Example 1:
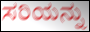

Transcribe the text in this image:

ಸರಿಯನ್ನು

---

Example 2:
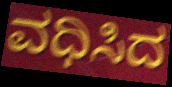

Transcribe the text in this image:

ವಧಿಸಿದ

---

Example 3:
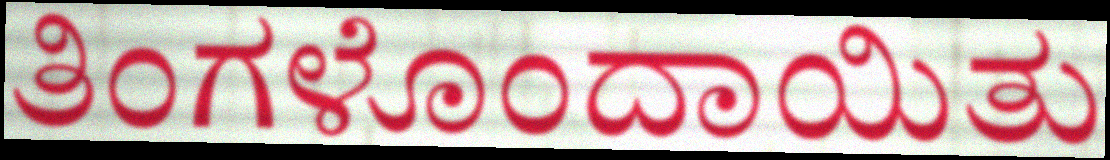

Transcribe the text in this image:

ತಿಂಗಳೊಂದಾಯಿತು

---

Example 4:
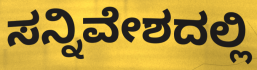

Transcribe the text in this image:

ಸನ್ನಿವೇಶದಲ್ಲಿ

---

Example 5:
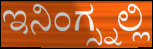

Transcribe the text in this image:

ಇನಿಂಗ್ಸ್ನಲ್ಲಿ